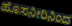
ಹೊಸನೀರಿನಿಂದ